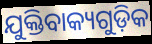
ଯୁକ୍ତିବାକ୍ୟଗୁଡ଼ିକ